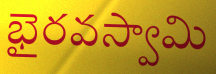
భైరవస్వామి